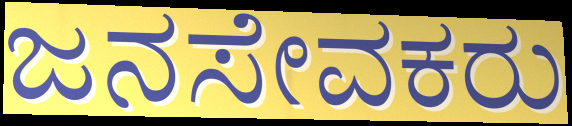
ಜನಸೇವಕರು